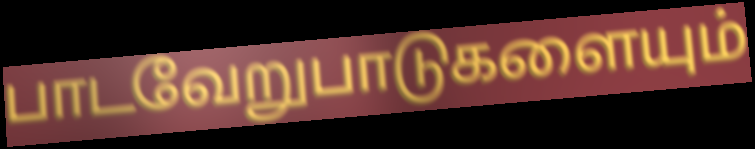
பாடவேறுபாடுகளையும்